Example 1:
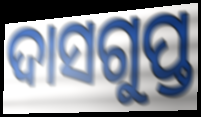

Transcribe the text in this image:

ଦାସଗୁପ୍ତ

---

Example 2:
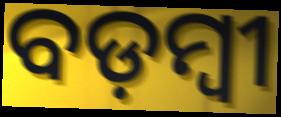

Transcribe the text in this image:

ବଡ଼ମ୍ବୀ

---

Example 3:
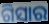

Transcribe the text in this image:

ଗିସାର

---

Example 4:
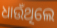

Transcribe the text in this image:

ଧାଉଁଥିଲେ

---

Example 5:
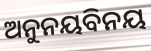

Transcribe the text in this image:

ଅନୁନୟବିନୟ